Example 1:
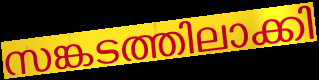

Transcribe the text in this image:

സങ്കടത്തിലാക്കി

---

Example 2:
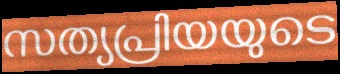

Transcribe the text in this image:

സത്യപ്രിയയുടെ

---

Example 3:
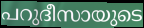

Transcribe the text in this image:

പറുദീസായുടെ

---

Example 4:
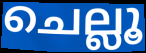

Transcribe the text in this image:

ചെല്ലൂ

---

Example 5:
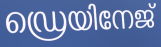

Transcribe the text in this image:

ഡ്രെയിനേജ്